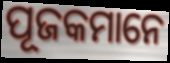
ପୂଜକମାନେ